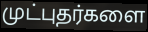
முட்புதர்களை